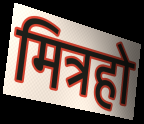
मित्रहो